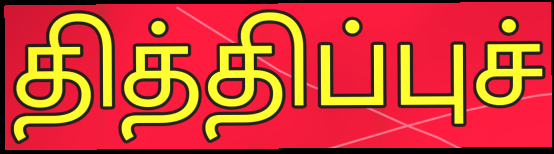
தித்திப்புச்